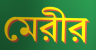
মেরীর